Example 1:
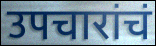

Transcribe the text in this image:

उपचारांचं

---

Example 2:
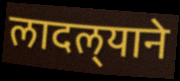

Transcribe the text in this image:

लादल्याने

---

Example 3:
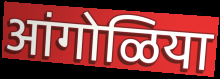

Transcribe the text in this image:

आंगोळिया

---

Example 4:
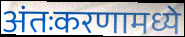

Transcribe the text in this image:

अंतःकरणामध्ये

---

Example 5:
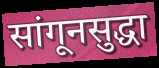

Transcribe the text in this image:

सांगूनसुद्धा